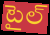
టైల్